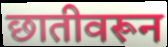
छातीवरून